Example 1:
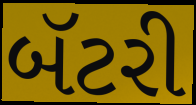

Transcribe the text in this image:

બૅટરી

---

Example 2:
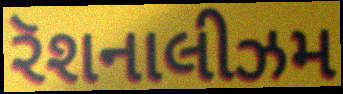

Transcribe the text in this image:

રૅશનાલીઝમ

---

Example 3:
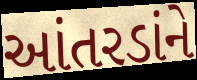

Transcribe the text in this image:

આંતરડાંને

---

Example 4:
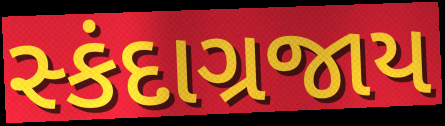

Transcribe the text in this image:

સ્કંદાગ્રજાય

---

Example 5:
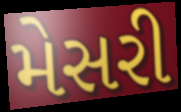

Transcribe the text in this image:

મેસરી